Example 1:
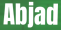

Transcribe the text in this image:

Abjad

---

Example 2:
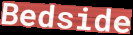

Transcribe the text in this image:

Bedside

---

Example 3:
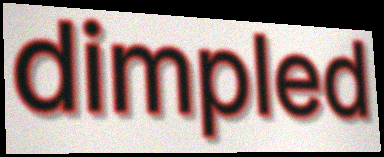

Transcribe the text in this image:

dimpled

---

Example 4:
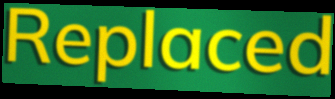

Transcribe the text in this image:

Replaced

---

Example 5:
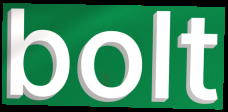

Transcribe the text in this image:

bolt